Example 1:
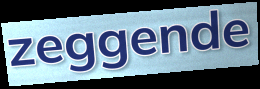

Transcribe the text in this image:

zeggende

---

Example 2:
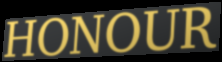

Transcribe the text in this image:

HONOUR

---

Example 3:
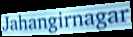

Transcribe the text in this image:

Jahangirnagar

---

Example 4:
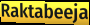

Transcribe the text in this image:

Raktabeeja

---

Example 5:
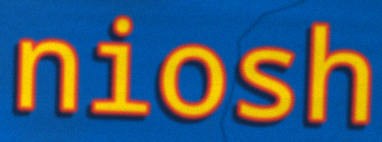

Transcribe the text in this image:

niosh